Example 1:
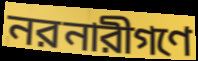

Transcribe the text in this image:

নরনারীগণে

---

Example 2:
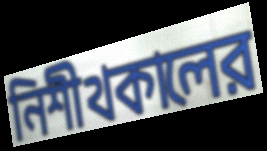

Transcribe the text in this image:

নিশীথকালের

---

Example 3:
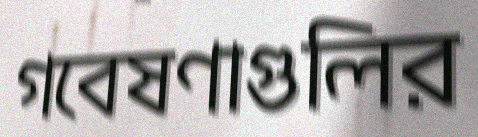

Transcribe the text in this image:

গবেষণাগুলির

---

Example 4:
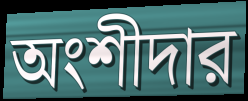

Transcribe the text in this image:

অংশীদার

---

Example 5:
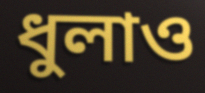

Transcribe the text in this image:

ধুলাও